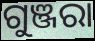
ଗୁଞ୍ଜରା